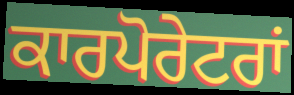
ਕਾਰਪੋਰੇਟਰਾਂ